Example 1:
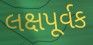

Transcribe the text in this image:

લક્ષપૂર્વક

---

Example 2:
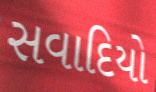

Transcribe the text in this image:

સવાદિયો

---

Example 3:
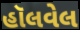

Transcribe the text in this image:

હૉલવેલ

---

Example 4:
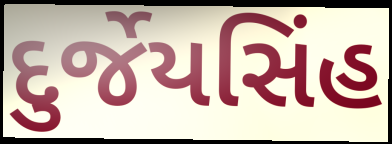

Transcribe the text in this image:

દુર્જેયસિંહ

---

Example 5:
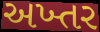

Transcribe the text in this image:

અખ્તર